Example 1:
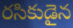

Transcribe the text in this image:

రసికుడైన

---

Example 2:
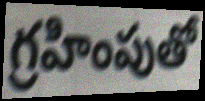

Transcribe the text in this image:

గ్రహింపుతో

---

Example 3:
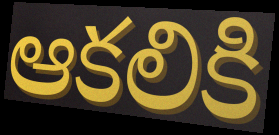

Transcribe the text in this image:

ఆకలికి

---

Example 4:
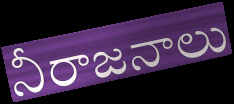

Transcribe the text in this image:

నీరాజనాలు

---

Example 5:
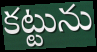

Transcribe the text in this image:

కట్టును